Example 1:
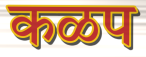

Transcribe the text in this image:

कळप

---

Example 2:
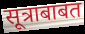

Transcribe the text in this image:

सूत्राबाबत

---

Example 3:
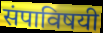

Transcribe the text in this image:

संपाविषयी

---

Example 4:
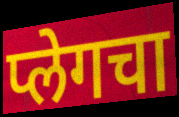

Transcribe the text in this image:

प्लेगचा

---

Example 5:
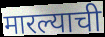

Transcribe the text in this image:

मारल्याची